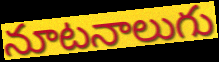
నూటనాలుగు